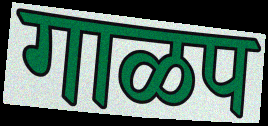
गाळप